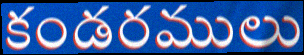
కండరములు